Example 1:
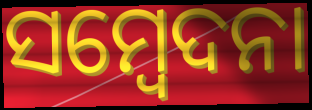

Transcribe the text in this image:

ସମ୍ବେଦନା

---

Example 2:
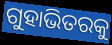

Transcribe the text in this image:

ଗୁହାଭିତରକୁ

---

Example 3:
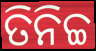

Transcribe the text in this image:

ତିନିଚ୍ଚ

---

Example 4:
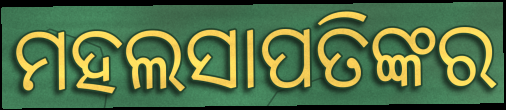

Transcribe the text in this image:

ମହଲସାପତିଙ୍କର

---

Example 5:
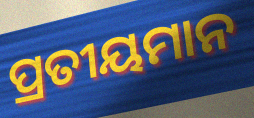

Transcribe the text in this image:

ପ୍ରତୀୟମାନ